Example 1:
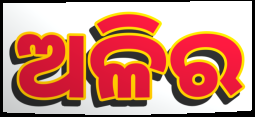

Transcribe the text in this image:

ଅଳିର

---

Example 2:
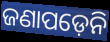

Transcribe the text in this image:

ଜଣାପଡ଼େନି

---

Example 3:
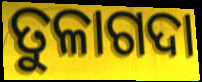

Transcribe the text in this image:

ତୁଳାଗଦା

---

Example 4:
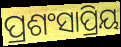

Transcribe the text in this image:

ପ୍ରଶଂସାପ୍ରିୟ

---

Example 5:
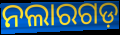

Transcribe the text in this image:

ନଲାରଗଡ଼